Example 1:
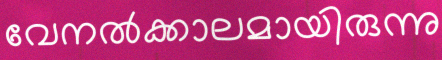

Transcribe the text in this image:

വേനൽക്കാലമായിരുന്നു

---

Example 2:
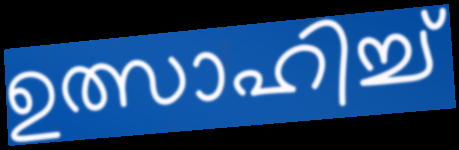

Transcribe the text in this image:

ഉത്സാഹിച്ച്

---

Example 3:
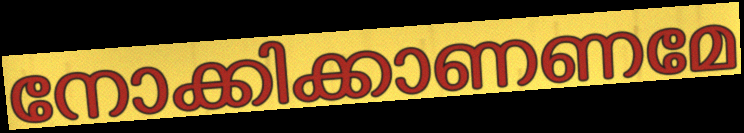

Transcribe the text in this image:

നോക്കിക്കാണണമേ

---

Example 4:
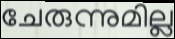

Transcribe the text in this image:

ചേരുന്നുമില്ല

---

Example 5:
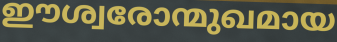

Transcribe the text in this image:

ഈശ്വരോന്മുഖമായ